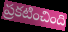
ప్రకటించింది